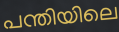
പന്തിയിലെ